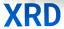
XRD